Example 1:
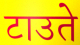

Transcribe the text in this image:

टाउते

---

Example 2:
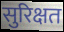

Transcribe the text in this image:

सुरिक्षत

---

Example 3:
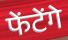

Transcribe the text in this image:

फेंटेंगे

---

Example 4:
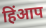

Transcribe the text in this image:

हिंआप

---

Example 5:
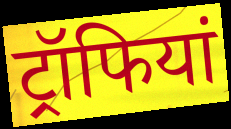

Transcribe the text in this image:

ट्रॉफियां